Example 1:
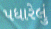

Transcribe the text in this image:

પધારેલું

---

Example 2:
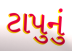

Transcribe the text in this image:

ટાપુનું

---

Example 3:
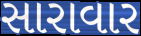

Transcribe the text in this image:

સારાવાર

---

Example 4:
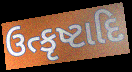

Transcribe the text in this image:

ઉત્કૃષ્ટાદિ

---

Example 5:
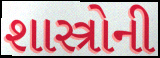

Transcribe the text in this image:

શાસ્ત્રોની